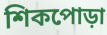
শিকপোড়া